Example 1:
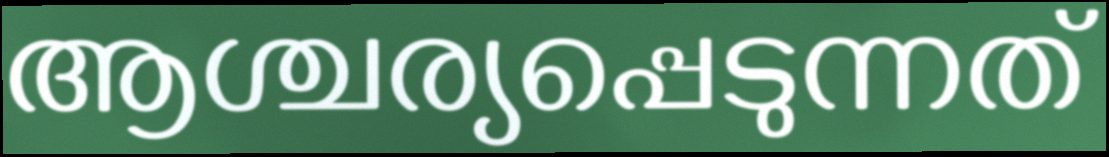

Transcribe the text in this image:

ആശ്ചര്യപ്പെടുന്നത്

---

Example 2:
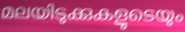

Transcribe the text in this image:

മലയിടുക്കുകളുടെയും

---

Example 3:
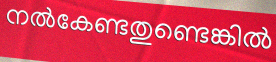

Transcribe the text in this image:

നൽകേണ്ടതുണ്ടെങ്കിൽ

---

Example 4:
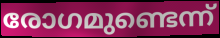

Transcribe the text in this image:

രോഗമുണ്ടെന്ന്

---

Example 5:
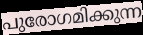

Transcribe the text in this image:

പുരോഗമിക്കുന്ന